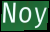
Noy